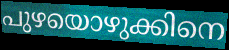
പുഴയൊഴുക്കിനെ